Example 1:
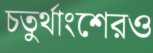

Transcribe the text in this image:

চতুর্থাংশেরও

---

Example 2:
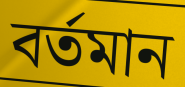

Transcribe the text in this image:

বর্তমান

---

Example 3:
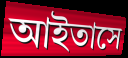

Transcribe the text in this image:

আইতাসে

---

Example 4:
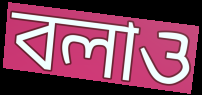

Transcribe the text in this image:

বলাও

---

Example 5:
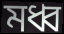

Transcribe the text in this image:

মধ্ব